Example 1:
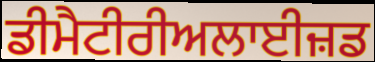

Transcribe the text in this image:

ਡੀਮੈਟੀਰੀਅਲਾਈਜ਼ਡ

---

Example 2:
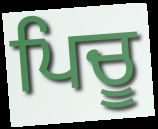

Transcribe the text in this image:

ਪਿਚੂ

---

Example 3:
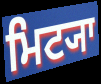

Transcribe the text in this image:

ਮਿਟ੍ਯਾ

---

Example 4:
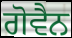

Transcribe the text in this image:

ਗੋਵੈਨ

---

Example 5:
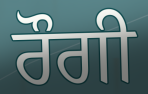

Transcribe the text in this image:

ਰੌਗੀ